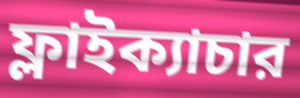
ফ্লাইক্যাচার